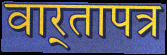
वार्तापत्र